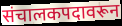
संचालकपदावरून